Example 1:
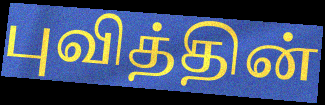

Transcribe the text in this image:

புவித்தின்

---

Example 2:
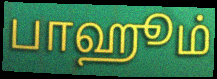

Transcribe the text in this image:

பாஹூம்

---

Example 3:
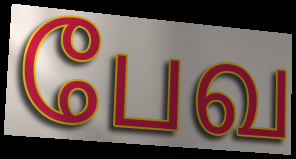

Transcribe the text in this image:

பேவ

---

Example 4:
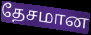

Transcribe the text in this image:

தேசமான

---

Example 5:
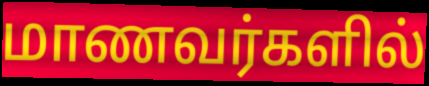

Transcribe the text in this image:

மாணவர்களில்